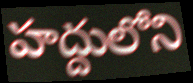
హద్దులోని